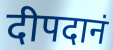
दीपदानं